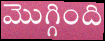
మొగ్గింది